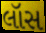
લૉસ